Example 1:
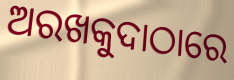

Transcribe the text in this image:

ଅରଖକୁଦାଠାରେ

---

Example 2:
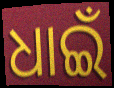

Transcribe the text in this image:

ଧାଇଁ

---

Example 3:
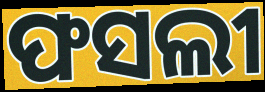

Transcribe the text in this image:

ଫସଲୀ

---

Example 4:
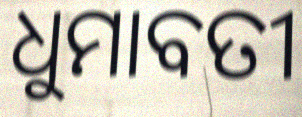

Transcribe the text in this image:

ଧୁମାବତୀ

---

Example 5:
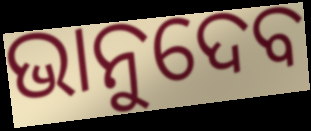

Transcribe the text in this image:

ଭାନୁଦେବ